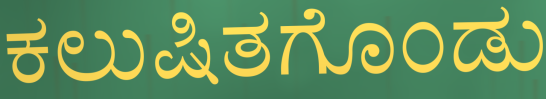
ಕಲುಷಿತಗೊಂಡು